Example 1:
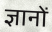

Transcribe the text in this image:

ज्ञानों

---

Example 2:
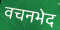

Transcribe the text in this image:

वचनभेद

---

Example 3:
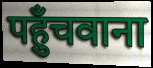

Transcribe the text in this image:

पहुँचवाना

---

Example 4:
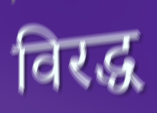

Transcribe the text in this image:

विरद्ध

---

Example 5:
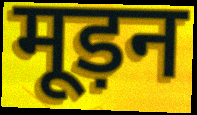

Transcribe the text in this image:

मूड़न